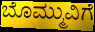
ಬೊಮ್ಮುವಿಗೆ